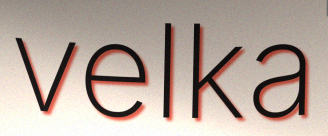
velka